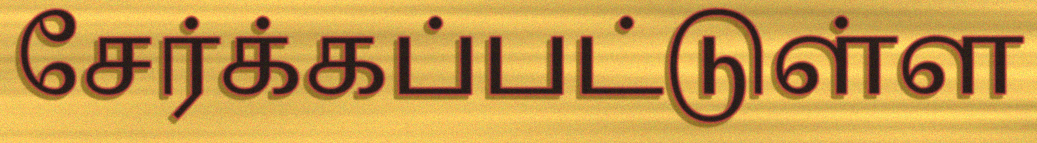
சேர்க்கப்பட்டுள்ள